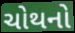
ચોથનો